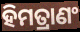
ହିମତ୍ରାଣଂ